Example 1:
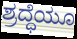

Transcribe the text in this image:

ಶ್ರದ್ಧೆಯೂ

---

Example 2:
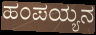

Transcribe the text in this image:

ಹಂಪಯ್ಯನ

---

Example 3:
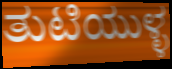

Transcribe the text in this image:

ತುಟಿಯುಳ್ಳ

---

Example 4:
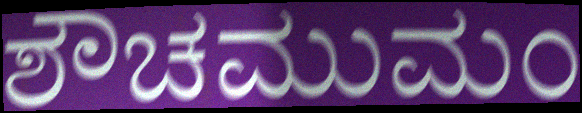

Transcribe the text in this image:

ಶೌಚಮುಮಂ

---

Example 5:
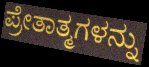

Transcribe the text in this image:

ಪ್ರೇತಾತ್ಮಗಳನ್ನು